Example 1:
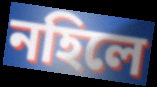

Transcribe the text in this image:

নহিলে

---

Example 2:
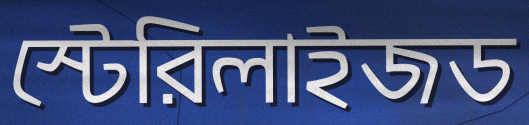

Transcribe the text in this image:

স্টেরিলাইজড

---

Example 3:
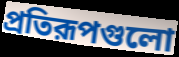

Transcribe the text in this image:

প্রতিরূপগুলো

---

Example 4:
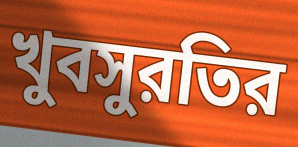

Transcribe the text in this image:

খুবসুরতির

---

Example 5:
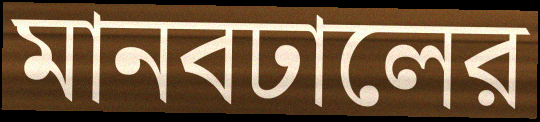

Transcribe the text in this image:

মানবঢালের